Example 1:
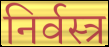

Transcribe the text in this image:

निर्वस्‍त्र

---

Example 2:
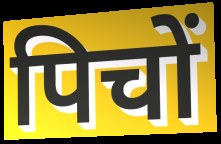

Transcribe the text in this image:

पिचों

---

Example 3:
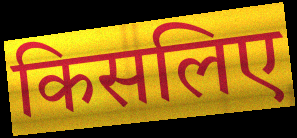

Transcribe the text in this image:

किसलिए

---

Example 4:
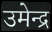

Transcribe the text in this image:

उमेन्द्र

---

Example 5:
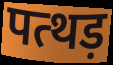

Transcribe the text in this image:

पत्थड़